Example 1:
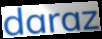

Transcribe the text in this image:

daraz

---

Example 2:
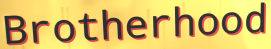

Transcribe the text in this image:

Brotherhood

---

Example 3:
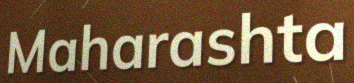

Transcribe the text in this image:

Maharashta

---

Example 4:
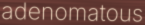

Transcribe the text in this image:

adenomatous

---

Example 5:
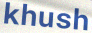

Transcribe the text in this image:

khush